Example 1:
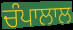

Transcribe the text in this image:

ਚੰਪਾਲਾਲ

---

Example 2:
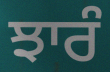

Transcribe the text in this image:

ਝਾਰੰ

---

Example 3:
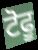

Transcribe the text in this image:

ਟੋਫੂ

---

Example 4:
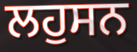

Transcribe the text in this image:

ਲਹੁਸਨ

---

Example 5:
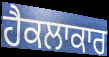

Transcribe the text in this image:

ਹੈਕਲਾਕਾਰ